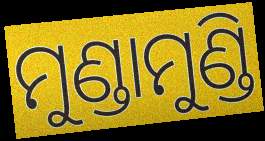
ମୁଣ୍ଡାମୁଣ୍ଡି